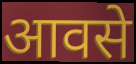
आवसे